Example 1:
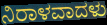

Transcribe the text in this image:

ನಿರಾಳವಾದಳು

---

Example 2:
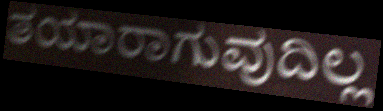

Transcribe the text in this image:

ತಯಾರಾಗುವುದಿಲ್ಲ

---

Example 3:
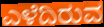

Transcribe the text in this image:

ಎಳೆದಿರುವ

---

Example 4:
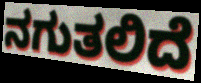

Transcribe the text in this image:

ನಗುತಲಿದೆ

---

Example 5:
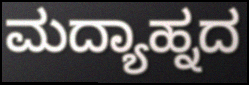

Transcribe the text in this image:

ಮದ್ಯಾಹ್ನದ